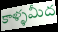
కాళ్ళమీద